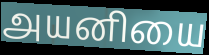
அயனியை